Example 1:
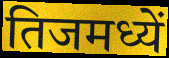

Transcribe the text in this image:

तिजमध्यें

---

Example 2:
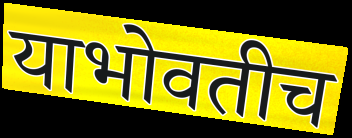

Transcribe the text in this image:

याभोवतीच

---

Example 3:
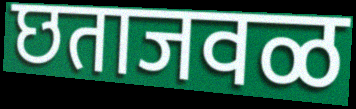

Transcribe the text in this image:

छताजवळ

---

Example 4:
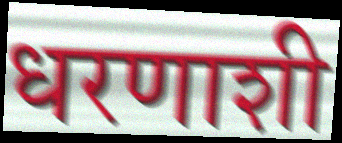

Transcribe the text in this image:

धरणाशी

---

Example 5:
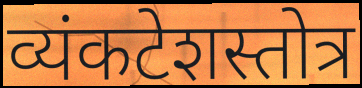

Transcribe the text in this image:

व्यंकटेशस्तोत्र